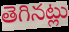
తెగినట్లు